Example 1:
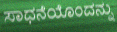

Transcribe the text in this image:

ಸಾಧನೆಯೊಂದನ್ನು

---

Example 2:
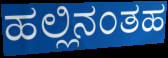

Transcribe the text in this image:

ಹಲ್ಲಿನಂತಹ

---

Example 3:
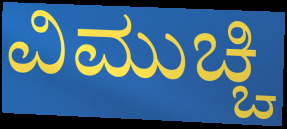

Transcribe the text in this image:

ವಿಮುಚ್ಚಿ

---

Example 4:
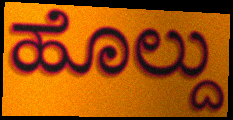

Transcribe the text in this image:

ಹೊಲ್ದು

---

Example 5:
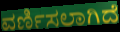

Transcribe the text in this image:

ವರ್ಣಿಸಲಾಗಿದೆ